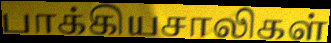
பாக்கியசாலிகள்